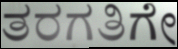
ತರಗತಿಗೇ